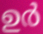
ഉർ